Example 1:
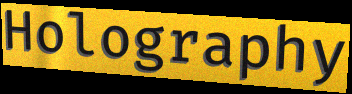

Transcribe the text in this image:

Holography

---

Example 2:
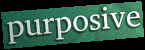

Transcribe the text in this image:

purposive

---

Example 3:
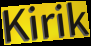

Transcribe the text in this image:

Kirik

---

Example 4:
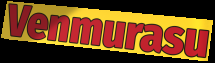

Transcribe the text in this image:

Venmurasu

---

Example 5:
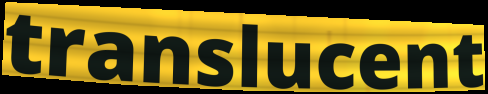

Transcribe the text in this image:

translucent